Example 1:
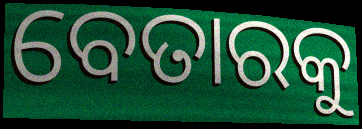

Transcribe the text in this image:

ବେତାରକୁ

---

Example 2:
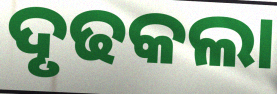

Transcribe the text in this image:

ଦୃଢକଲା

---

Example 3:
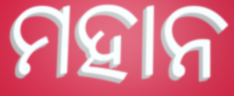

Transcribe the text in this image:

ମହାନ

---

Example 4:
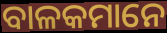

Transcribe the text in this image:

ବାଳକମାନେ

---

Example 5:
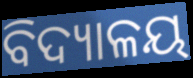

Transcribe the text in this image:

ବିଦ୍ଯାଳୟ